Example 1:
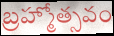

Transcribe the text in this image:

బ్రహ్మోత్సవం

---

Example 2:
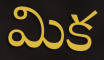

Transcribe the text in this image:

మిక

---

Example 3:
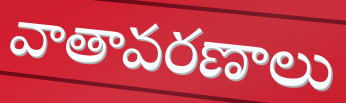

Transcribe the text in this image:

వాతావరణాలు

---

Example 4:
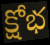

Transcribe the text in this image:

క్షోభ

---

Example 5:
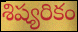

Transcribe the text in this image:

శిష్యరికం